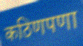
कठिणपणा